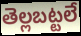
తెల్లబట్టలే